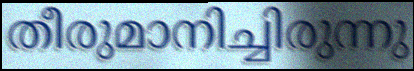
തീരുമാനിച്ചിരുന്നു